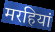
मरहियां